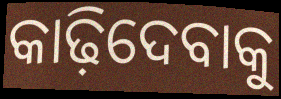
କାଢ଼ିଦେବାକୁ